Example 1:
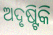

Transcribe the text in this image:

ଅଦୃଷ୍ଟିକି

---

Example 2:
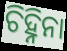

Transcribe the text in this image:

ଚିହ୍ନିନା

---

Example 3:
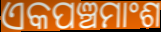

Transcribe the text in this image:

ଏକପଞ୍ଚମାଂଶ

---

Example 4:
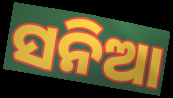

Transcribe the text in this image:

ସନିଆ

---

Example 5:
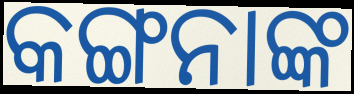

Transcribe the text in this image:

କଙ୍ଗନାଙ୍କ